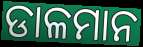
ଡାଳମାନ